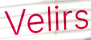
Velirs